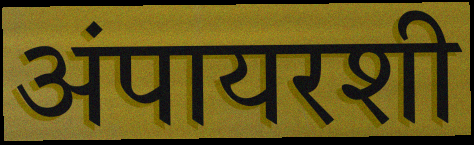
अंपायरशी